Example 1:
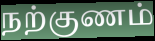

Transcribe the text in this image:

நற்குணம்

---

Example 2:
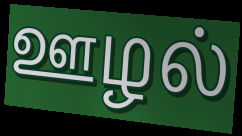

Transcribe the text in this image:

ஊழல்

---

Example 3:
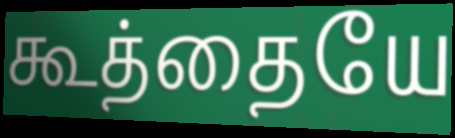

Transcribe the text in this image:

கூத்தையே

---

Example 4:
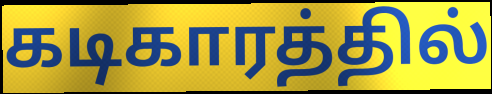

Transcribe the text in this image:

கடிகாரத்தில்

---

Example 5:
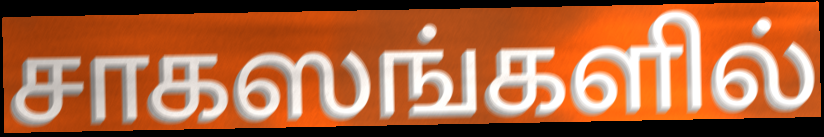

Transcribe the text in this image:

சாகஸங்களில்